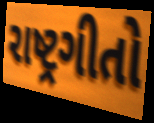
રાષ્ટ્રગીતો